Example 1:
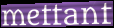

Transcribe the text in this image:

mettant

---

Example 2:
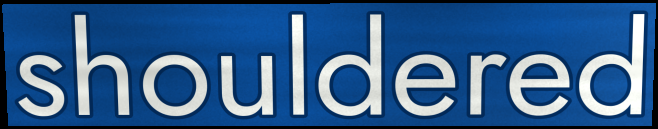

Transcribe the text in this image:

shouldered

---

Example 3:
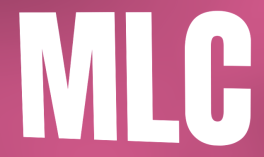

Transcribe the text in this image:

MLC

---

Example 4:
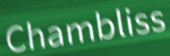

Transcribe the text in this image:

Chambliss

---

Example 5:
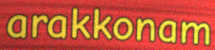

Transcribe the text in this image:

arakkonam